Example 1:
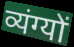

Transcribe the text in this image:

व्यंग्यों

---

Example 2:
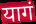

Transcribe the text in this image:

यागं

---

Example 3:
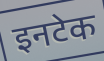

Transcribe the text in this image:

इनटेक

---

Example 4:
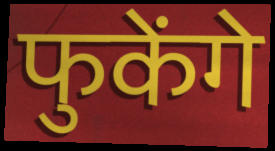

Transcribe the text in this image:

फुकेंगे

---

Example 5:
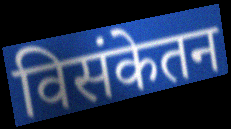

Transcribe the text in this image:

विसंकेतन